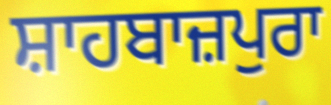
ਸ਼ਾਹਬਾਜ਼ਪੁਰਾ